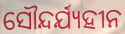
ସୌନ୍ଦର୍ଯ୍ୟହୀନ